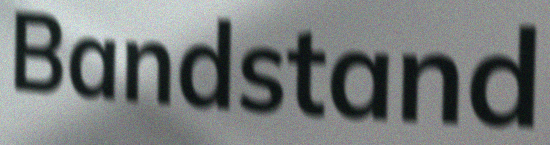
Bandstand